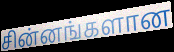
சின்னங்களான